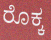
ರೊಕ್ಕ